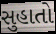
સુહાતો